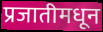
प्रजातीमधून